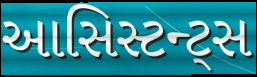
આસિસ્ટન્ટ્સ